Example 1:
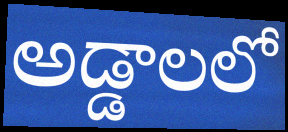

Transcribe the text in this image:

అడ్డాలలో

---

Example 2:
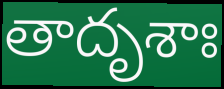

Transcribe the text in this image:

తాదృశాః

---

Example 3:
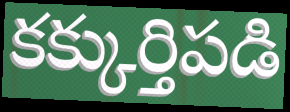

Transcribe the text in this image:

కక్కుర్తిపడి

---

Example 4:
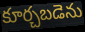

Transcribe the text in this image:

కూర్చబడెను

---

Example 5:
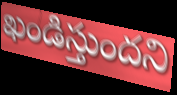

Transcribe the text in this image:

ఖండిస్తుందని